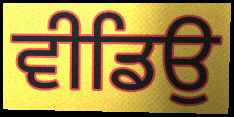
ਵੀਡਿਉ